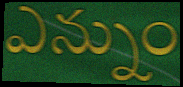
ఎన్నుం